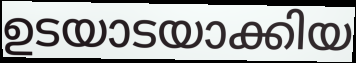
ഉടയാടയാക്കിയ